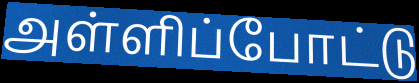
அள்ளிப்போட்டு